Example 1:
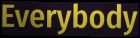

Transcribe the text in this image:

Everybody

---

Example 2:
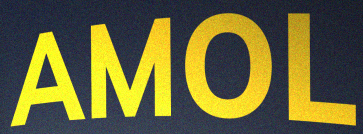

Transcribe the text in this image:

AMOL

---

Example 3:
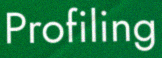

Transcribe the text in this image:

Profiling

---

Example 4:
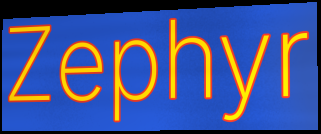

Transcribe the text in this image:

Zephyr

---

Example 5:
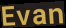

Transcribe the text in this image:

Evan